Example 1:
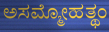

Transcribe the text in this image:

ಅಸಮ್ಮೋಹತ್ಥಂ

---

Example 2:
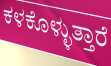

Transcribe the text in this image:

ಕಳಕೊಳ್ಳುತ್ತಾರೆ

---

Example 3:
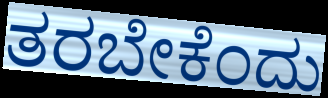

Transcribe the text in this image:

ತರಬೇಕೆಂದು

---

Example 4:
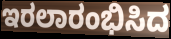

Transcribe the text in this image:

ಇರಲಾರಂಭಿಸಿದ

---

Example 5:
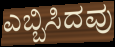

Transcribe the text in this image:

ಎಬ್ಬಿಸಿದವು